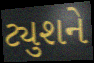
ટ્યુશને